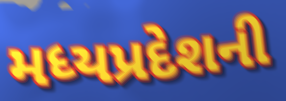
મધ્યપ્રદેશની